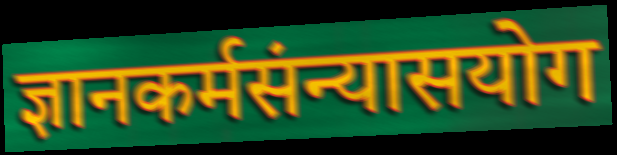
ज्ञानकर्मसंन्यासयोग